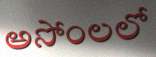
అసోంలలో